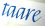
taare